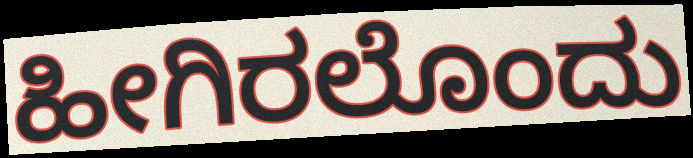
ಹೀಗಿರಲೊಂದು